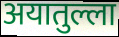
अयातुल्ला